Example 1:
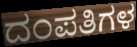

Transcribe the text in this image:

ದಂಪತಿಗಳ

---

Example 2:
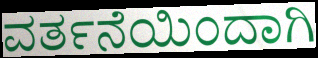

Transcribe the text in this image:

ವರ್ತನೆಯಿಂದಾಗಿ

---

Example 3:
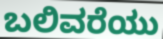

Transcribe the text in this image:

ಬಲಿವರೆಯು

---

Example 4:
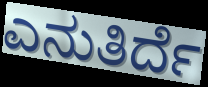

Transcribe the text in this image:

ಎನುತಿರ್ದೆ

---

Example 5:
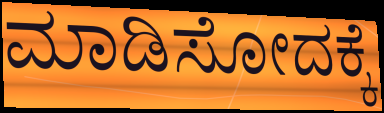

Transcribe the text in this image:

ಮಾಡಿಸೋದಕ್ಕೆ